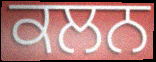
ਕਲਨ